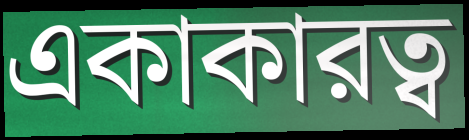
একাকারত্ব